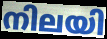
നിലയി